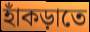
হাঁকড়াতে